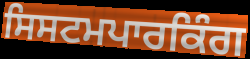
ਸਿਸਟਮਪਾਰਕਿੰਗ